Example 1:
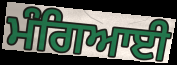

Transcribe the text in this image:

ਮੰਗਿਆਈ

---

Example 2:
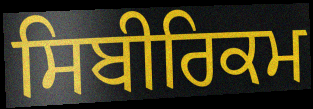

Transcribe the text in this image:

ਸਿਬੀਰਿਕਮ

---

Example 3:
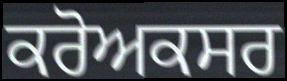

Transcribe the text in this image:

ਕਰੋਅਕਸਰ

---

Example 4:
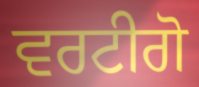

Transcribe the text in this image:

ਵਰਟੀਗੋ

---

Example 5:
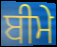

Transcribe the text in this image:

ਬੀਮੇ